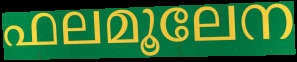
ഫലമൂലേന